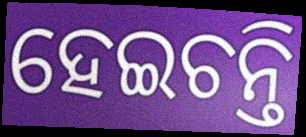
ହେଇଚନ୍ତି